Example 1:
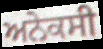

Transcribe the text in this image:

ਅਨੇਕਸੀ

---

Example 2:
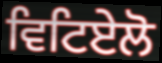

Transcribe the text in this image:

ਵਿਟਿਏਲੋ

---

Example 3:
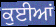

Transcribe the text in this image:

ਕੁਈਆਂ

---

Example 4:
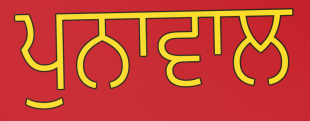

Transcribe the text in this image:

ਪੁਨਾਵਾਲ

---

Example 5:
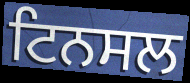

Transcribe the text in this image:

ਟਿਨਸਲ